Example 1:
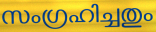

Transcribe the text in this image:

സംഗ്രഹിച്ചതും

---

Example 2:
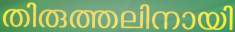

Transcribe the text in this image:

തിരുത്തലിനായി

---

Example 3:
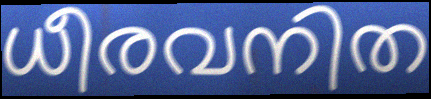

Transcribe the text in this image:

ധീരവനിത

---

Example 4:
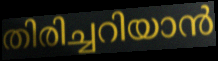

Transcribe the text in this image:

തിരിച്ചറിയാൻ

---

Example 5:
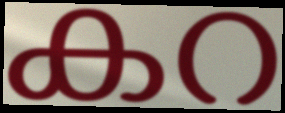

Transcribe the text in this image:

കറ